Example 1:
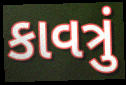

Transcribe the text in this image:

કાવત્રું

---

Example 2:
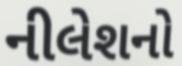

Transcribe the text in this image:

નીલેશનો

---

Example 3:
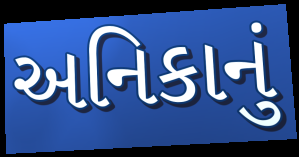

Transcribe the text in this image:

અનિકાનું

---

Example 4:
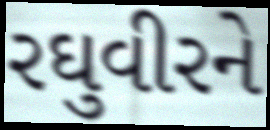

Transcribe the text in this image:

રઘુવીરને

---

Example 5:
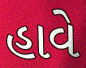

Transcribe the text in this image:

હાવે